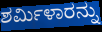
ಶರ್ಮಿಳಾರನ್ನು